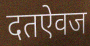
दतऐवज